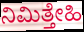
ನಿಮಿತ್ತೇಹಿ